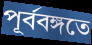
পূর্ববঙ্গতে